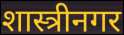
शास्त्रीनगर